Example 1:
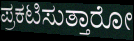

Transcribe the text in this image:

ಪ್ರಕಟಿಸುತ್ತಾರೋ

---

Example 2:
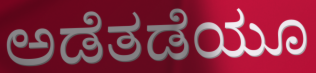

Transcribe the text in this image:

ಅಡೆತಡೆಯೂ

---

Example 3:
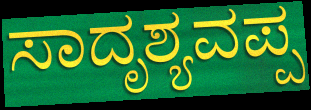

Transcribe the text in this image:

ಸಾದೃಶ್ಯವಪ್ಪ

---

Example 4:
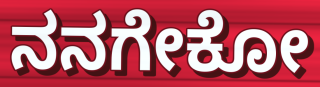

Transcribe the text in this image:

ನನಗೇಕೋ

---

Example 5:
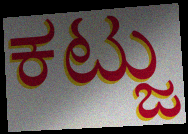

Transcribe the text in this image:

ಕಟ್ಜು